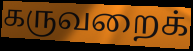
கருவறைக்